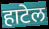
हाटेल